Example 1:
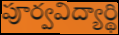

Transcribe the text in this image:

పూర్వవిద్యార్థి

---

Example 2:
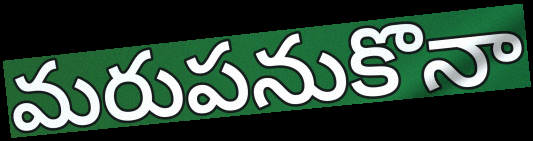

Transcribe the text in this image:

మరుపనుకొనా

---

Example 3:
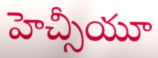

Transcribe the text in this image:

హెచ్సీయూ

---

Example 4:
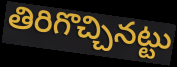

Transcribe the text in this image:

తిరిగొచ్చినట్టు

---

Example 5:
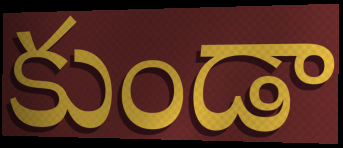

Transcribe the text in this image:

కుండా